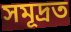
সমূদ্ৰত